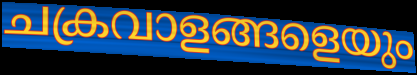
ചക്രവാളങ്ങളെയും